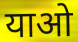
याओ